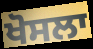
ਖੋਸਲਾ